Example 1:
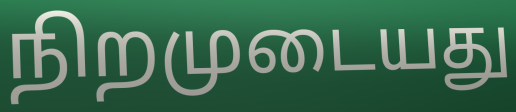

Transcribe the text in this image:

நிறமுடையது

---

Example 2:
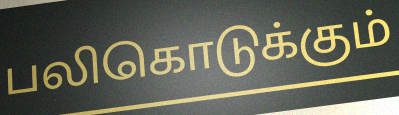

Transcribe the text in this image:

பலிகொடுக்கும்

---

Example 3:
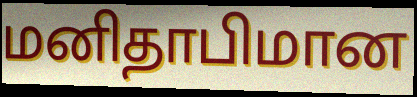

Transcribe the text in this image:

மனிதாபிமான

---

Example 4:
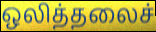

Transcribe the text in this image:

ஒலித்தலைச்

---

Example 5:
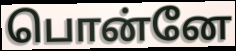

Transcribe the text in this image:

பொன்னே